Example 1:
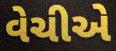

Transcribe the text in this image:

વેચીએ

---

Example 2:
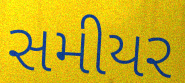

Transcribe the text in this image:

સમીયર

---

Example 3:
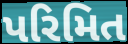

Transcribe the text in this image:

પરિમિત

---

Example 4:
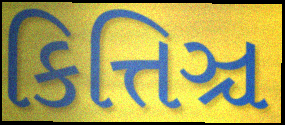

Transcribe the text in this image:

કિત્તિઞ્ચ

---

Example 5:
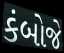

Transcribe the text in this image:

કંબોજે